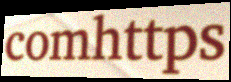
comhttps